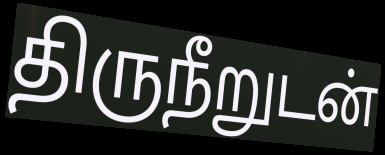
திருநீறுடன்